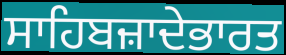
ਸਾਹਿਬਜ਼ਾਦੇਭਾਰਤ